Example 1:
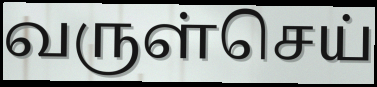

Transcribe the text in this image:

வருள்செய்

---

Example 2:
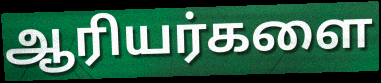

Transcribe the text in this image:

ஆரியர்களை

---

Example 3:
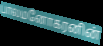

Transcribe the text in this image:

பாலமனோகரனின்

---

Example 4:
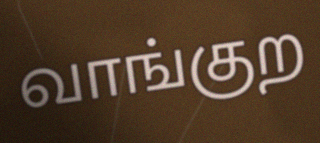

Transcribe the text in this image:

வாங்குற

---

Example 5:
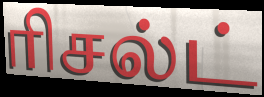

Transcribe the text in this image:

ரிசல்ட்